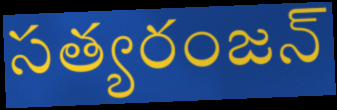
సత్యరంజన్